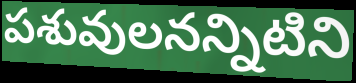
పశువులనన్నిటిని